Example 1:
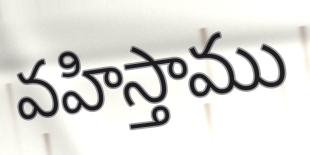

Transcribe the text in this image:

వహిస్తాము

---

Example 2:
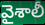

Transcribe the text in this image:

వైశాలీ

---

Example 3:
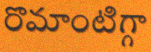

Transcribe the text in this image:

రొమాంటిగ్గా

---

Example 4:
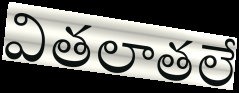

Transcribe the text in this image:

వితలాతలే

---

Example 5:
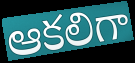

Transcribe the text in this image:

ఆకలిగా